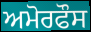
ਅਮੋਰਫੌਸ